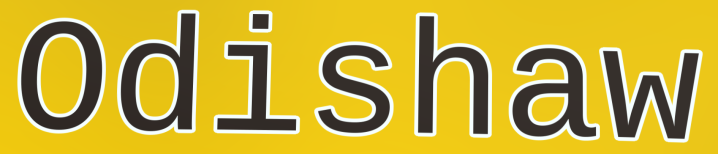
Odishaw